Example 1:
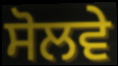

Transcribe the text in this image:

ਸੋਲਵੇ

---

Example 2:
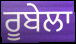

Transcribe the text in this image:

ਰੂਬੇਲਾ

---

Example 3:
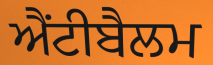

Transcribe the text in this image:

ਐਂਟੀਬੈਲਮ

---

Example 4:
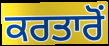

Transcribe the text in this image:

ਕਰਤਾਰੋਂ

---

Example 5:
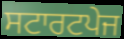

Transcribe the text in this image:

ਸਟਾਰਟਪੇਜ